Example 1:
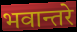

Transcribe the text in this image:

भवान्तरे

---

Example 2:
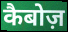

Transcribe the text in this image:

कैबोज़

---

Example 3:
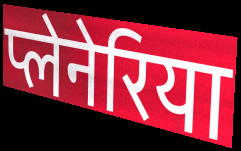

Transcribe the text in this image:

प्लेनेरिया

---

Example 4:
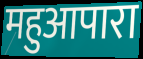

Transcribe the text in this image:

महुआपारा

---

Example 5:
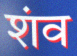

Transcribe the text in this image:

शंव